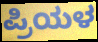
ಪ್ರಿಯಳ